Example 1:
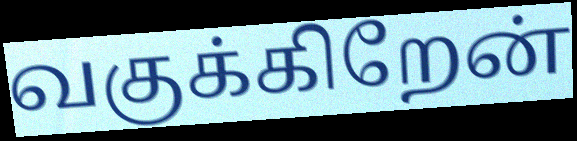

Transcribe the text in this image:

வகுக்கிறேன்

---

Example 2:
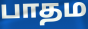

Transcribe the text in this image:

பாதம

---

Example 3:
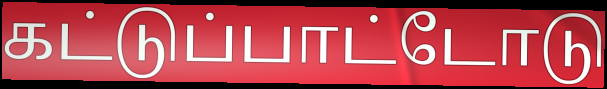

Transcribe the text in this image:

கட்டுப்பாட்டோடு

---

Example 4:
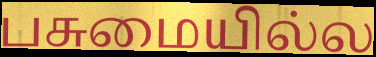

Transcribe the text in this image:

பசுமையில்ல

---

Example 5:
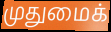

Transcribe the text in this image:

முதுமைக்